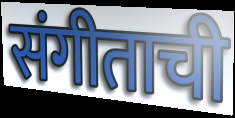
संगीताची